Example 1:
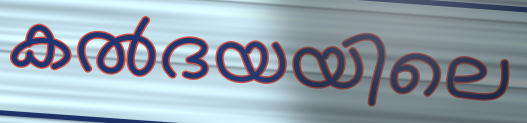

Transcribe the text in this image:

കൽദയയിലെ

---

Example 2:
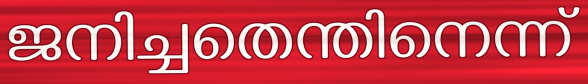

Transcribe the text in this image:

ജനിച്ചതെന്തിനെന്ന്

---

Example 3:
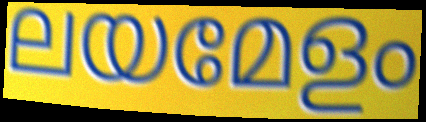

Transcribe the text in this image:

ലയമേളം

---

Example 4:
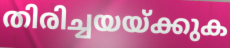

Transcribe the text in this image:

തിരിച്ചയയ്ക്കുക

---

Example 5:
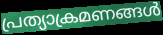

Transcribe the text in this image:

പ്രത്യാക്രമണങ്ങൾ